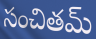
సంచితమ్